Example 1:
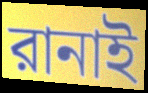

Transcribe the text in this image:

রানাই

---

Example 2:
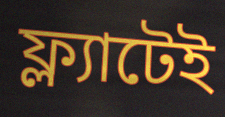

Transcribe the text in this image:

ফ্ল্যাটেই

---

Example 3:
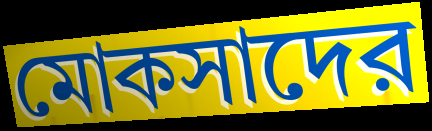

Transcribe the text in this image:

মোকসাদের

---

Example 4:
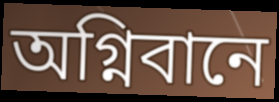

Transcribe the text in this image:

অগ্নিবানে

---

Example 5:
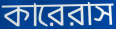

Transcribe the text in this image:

কারেরাস